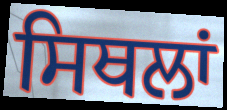
ਸਿਥਲਾਂ